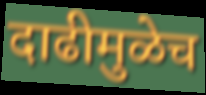
दाढीमुळेच